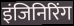
इंजिनिरिंग